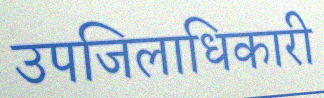
उपजिलाधिकारी